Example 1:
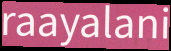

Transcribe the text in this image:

raayalani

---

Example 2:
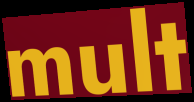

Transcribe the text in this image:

mult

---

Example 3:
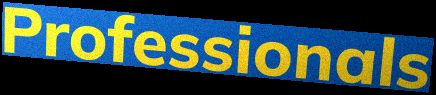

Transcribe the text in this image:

Professionals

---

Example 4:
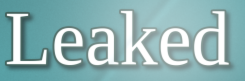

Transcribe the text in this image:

Leaked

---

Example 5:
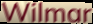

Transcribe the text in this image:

Wilmar